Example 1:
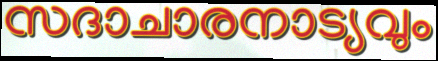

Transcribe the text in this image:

സദാചാരനാട്യവും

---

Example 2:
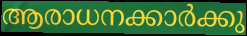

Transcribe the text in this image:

ആരാധനക്കാർക്കു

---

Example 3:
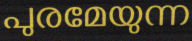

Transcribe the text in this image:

പുരമേയുന്ന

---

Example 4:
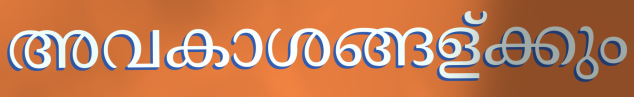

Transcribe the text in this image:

അവകാശങ്ങള്ക്കും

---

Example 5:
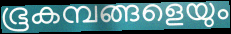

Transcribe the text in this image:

ഭൂകമ്പങ്ങളെയും